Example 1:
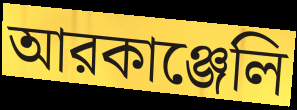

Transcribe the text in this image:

আরকাঞ্জেলি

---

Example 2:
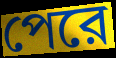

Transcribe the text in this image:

পেরে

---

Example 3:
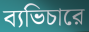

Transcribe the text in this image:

ব্যভিচারে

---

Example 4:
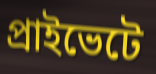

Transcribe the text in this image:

প্রাইভেটে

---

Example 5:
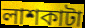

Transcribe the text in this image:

লাশকাটা